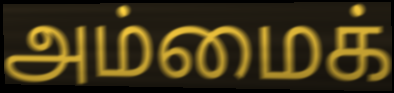
அம்மைக்